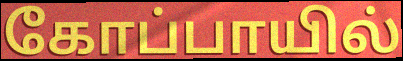
கோப்பாயில்